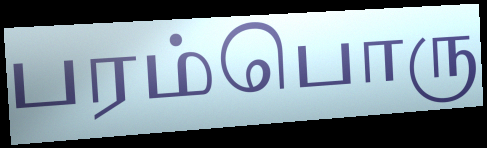
பரம்பொரு